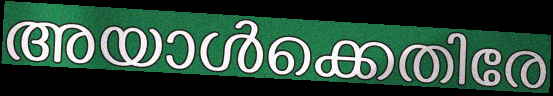
അയാൾക്കെതിരേ